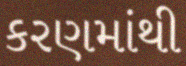
કરણમાંથી